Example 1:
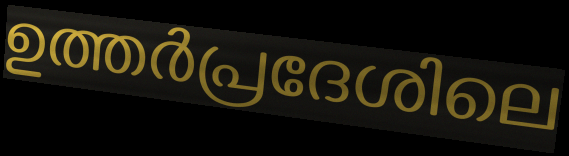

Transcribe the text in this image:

ഉത്തർപ്രദേശിലെ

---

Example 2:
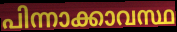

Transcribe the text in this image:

പിന്നാക്കാവസ്ഥ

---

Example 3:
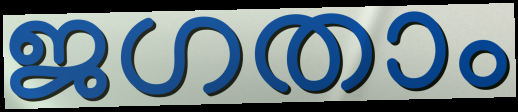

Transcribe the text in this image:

ജഗതാം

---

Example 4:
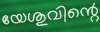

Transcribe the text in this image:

യേശുവിന്റെ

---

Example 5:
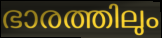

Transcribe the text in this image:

ഭാരത്തിലും